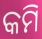
କମି